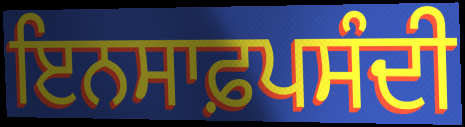
ਇਨਸਾਫ਼ਪਸੰਦੀ